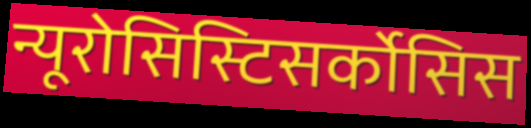
न्यूरोसिस्टिसर्कोसिस